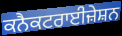
ਕਨੈਕਟਰਾਈਜ਼ੇਸ਼ਨ